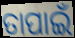
ତାପାଇଁ